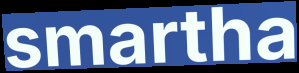
smartha